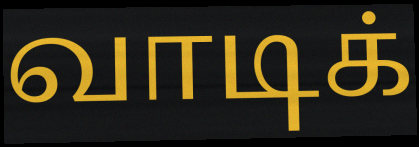
வாடிக்